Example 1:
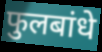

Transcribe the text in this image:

फुलबांधे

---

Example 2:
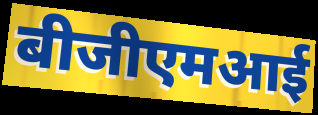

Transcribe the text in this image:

बीजीएमआई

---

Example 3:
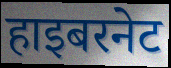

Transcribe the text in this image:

हाइबरनेट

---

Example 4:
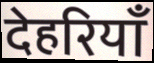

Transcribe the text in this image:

देहरियाँ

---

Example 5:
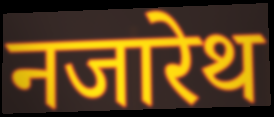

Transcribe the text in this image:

नजारेथ